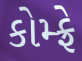
કોમ્ફ્રે